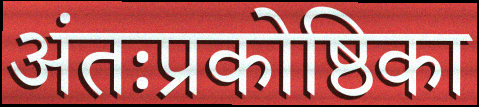
अंतःप्रकोष्ठिका